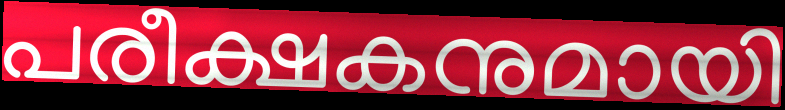
പരീക്ഷകനുമായി